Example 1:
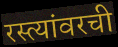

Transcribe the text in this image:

रस्त्यांवरची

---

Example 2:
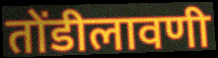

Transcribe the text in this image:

तोंडीलावणी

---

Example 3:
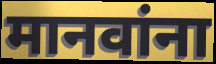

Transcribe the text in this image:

मानवांना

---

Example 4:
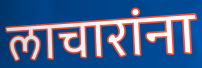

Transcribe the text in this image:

लाचारांना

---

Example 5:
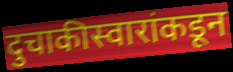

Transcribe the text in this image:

दुचाकीस्वारांकडून